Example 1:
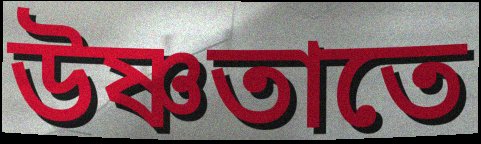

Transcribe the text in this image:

উষ্ণতাতে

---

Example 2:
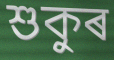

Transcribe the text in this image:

শুকুৰ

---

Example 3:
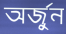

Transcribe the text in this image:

অৰ্জুন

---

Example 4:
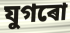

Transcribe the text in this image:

যুগৰো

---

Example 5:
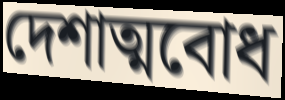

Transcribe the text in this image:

দেশাত্মবোধ